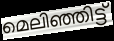
മെലിഞ്ഞിട്ട്